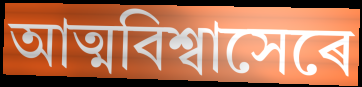
আত্মবিশ্বাসেৰে